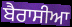
ਬੈਰਾਸੀਆ